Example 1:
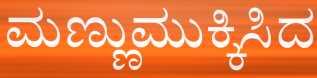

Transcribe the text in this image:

ಮಣ್ಣುಮುಕ್ಕಿಸಿದ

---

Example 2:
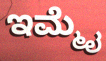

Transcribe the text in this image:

ಇಮ್ಮೈ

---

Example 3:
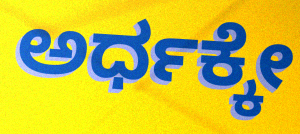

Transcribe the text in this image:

ಅರ್ಧಕ್ಕೇ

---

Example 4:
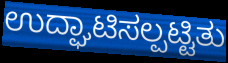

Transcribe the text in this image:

ಉದ್ಘಾಟಿಸಲ್ಪಟ್ಟಿತು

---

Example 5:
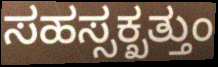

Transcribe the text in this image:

ಸಹಸ್ಸಕ್ಖತ್ತುಂ